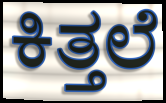
ಕಿತ್ತಲೆ